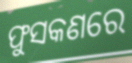
ଫୁସକଣରେ